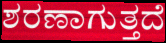
ಶರಣಾಗುತ್ತದೆ